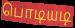
பொடியடி